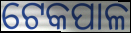
ଟେକପାଳ